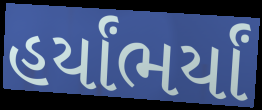
હર્યાંભર્યાં